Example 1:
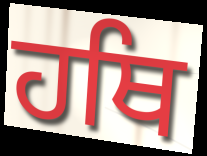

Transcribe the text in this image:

ਹਥਿ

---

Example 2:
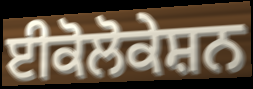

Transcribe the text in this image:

ਈਕੋਲੋਕੇਸ਼ਨ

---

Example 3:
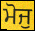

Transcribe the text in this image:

ਮੋਜੁ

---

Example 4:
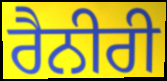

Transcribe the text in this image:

ਰੈਨੀਰੀ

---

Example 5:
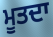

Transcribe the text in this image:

ਮੂਤਦਾ